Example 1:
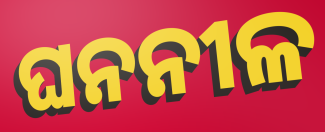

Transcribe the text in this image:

ଘନନୀଳ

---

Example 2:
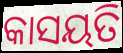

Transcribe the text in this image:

କାସୟତି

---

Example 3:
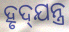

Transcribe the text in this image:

ହୃଦ୍‌ଯନ୍ତ୍ର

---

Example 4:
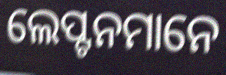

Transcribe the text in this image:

ଲେପ୍ଟନମାନେ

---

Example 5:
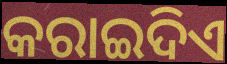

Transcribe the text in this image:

କରାଇଦିଏ